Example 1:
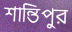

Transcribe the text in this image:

শান্তিপুর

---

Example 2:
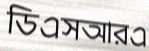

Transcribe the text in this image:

ডিএসআরএ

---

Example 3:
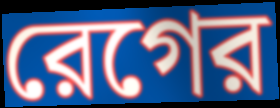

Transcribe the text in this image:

রেগের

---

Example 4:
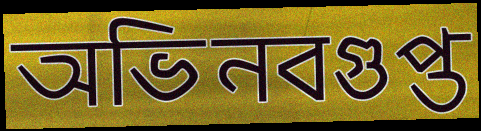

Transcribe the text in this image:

অভিনবগুপ্ত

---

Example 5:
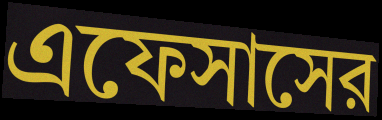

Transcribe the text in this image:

এফেসাসের